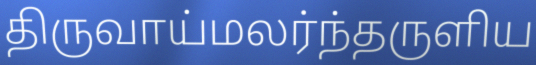
திருவாய்மலர்ந்தருளிய